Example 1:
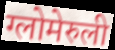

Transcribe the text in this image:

ग्लोमेरुली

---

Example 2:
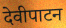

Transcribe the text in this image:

देवीपाटन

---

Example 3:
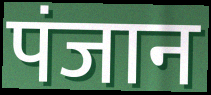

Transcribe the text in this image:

पंजान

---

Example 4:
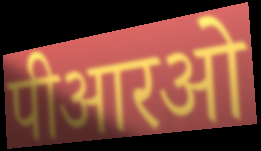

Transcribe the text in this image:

पीआरओ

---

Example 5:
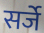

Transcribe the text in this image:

सर्जे